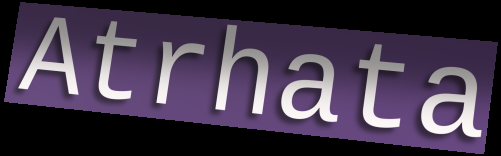
Atrhata